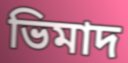
ভিমাদ